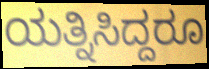
ಯತ್ನಿಸಿದ್ದರೂ